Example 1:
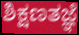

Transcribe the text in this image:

ಶಿಕ್ಷಣತಜ್ಞೆ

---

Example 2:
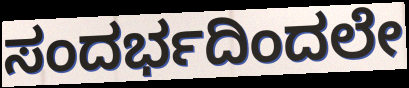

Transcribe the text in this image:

ಸಂದರ್ಭದಿಂದಲೇ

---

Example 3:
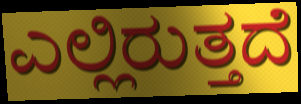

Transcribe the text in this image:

ಎಲ್ಲಿರುತ್ತದೆ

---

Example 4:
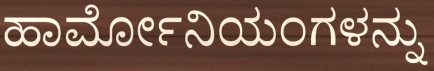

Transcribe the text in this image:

ಹಾರ್ಮೋನಿಯಂಗಳನ್ನು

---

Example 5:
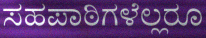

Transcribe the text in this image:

ಸಹಪಾಠಿಗಳೆಲ್ಲರೂ